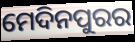
ମେଦିନପୁରର